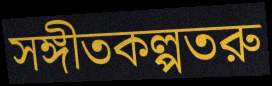
সঙ্গীতকল্পতরু